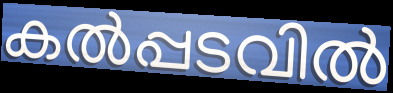
കൽപ്പടവിൽ